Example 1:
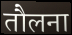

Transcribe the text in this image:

तौलना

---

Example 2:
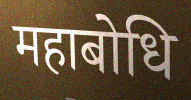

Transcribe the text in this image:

महाबोधि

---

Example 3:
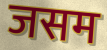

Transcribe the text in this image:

जसम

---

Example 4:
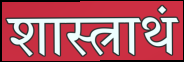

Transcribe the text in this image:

शास्त्राथं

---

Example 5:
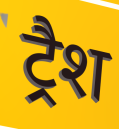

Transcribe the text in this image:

ट्रैश